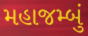
મહાજમ્બું